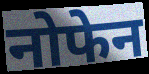
नोफेन